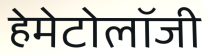
हेमेटोलॉजी